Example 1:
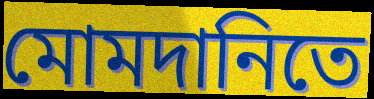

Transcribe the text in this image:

মোমদানিতে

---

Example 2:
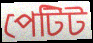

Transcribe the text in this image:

পেটিট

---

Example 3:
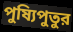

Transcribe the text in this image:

পুষ্যিপুতুর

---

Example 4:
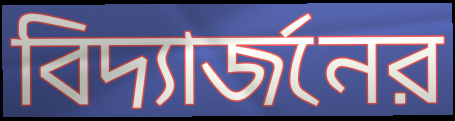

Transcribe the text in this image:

বিদ্যার্জনের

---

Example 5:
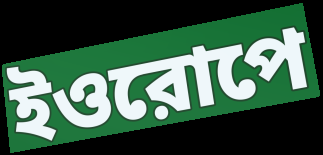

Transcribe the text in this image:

ইওরোপে